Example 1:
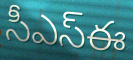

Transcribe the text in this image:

సీఎస్ఈ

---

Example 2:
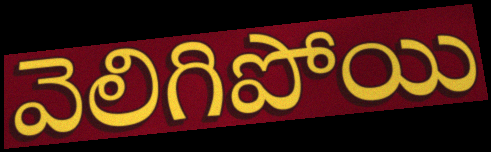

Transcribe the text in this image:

వెలిగిపోయి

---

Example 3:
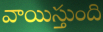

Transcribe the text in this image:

వాయిస్తుంది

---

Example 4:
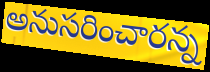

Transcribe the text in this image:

అనుసరించారన్న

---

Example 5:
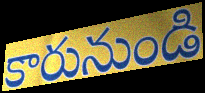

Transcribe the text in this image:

కారునుండి